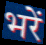
भरें